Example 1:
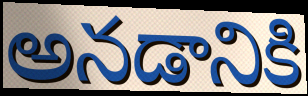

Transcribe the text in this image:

అనడానికి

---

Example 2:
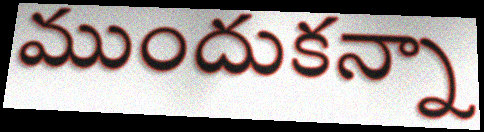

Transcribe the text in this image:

ముందుకన్నా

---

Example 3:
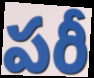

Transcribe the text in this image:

పరీ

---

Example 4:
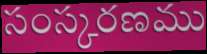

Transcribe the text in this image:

సంస్కరణము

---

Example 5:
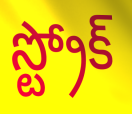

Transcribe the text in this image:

స్ట్రోక్